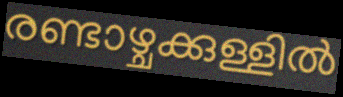
രണ്ടാഴ്ചക്കുള്ളിൽ